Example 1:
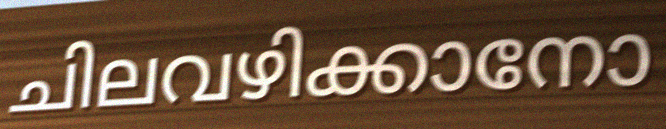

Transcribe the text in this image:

ചിലവഴിക്കാനോ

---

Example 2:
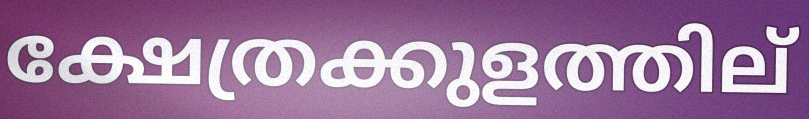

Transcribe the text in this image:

ക്ഷേത്രക്കുളത്തില്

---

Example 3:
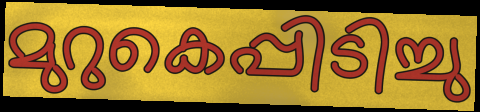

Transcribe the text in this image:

മുറുകെപ്പിടിച്ചു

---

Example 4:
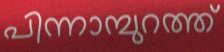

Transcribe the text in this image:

പിന്നാമ്പുറത്ത്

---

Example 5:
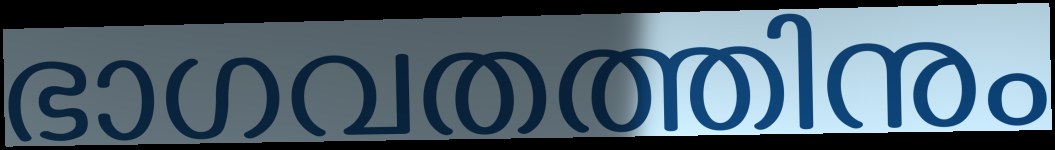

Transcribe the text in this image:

ഭാഗവതത്തിനും